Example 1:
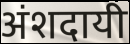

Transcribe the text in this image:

अंशदायी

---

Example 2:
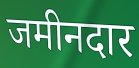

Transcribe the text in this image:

जमीनदार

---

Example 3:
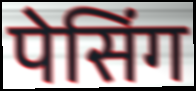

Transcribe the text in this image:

पेसिंग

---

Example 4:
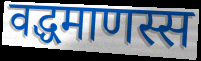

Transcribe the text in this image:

वद्धमाणस्स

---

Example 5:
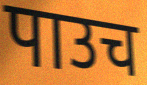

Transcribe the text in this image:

पाउच